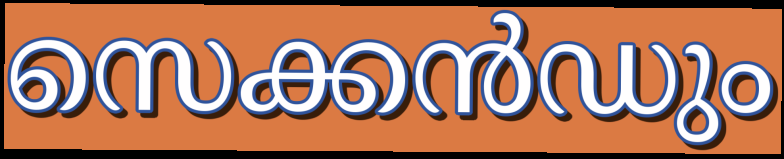
സെക്കൻഡും